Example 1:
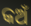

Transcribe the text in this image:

କଅଁ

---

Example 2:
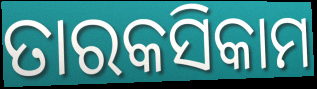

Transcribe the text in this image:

ତାରକସିକାମ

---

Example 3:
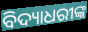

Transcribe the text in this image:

ବିଦ୍ୟାଧରୀଙ୍କ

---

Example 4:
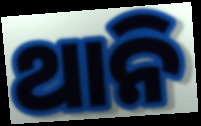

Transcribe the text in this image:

ଥାନି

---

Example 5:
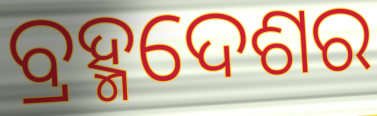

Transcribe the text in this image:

ବ୍ରହ୍ମଦେଶର